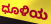
ಧೂಳಿಯ